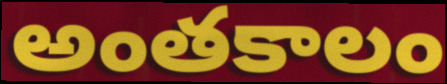
అంతకాలం